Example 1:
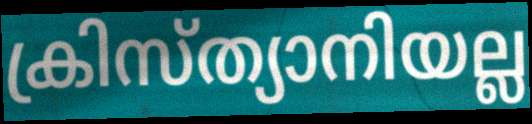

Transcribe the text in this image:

ക്രിസ്ത്യാനിയല്ല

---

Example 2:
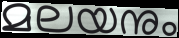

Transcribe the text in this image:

മലയനും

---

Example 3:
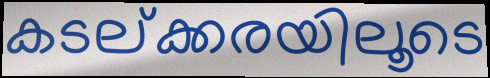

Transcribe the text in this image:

കടല്ക്കരയിലൂടെ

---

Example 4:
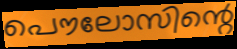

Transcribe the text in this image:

പൌലോസിന്റെ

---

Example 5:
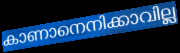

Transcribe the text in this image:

കാണാനെനിക്കാവില്ല